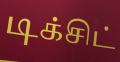
டிக்சிட்